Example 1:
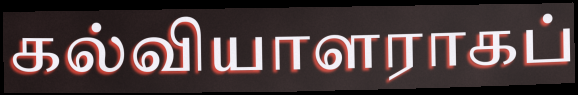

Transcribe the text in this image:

கல்வியாளராகப்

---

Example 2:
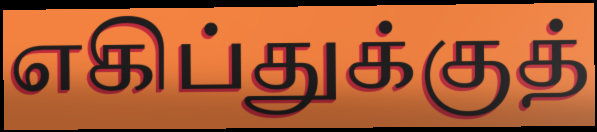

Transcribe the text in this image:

எகிப்துக்குத்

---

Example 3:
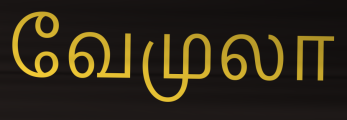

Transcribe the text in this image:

வேமுலா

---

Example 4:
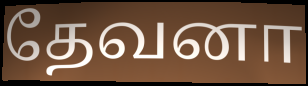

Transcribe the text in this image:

தேவனா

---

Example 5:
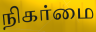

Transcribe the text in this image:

நிகர்மை